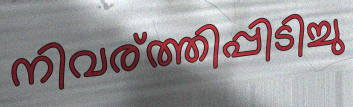
നിവര്ത്തിപ്പിടിച്ചു